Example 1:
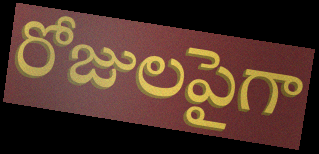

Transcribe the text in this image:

రోజులపైగా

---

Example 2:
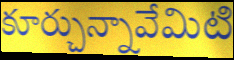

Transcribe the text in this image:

కూర్చున్నావేమిటి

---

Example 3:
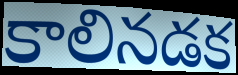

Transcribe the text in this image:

కాలినడక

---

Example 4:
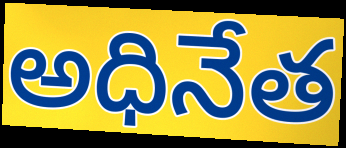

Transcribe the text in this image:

అధినేత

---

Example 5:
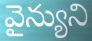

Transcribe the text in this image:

వైన్యుని